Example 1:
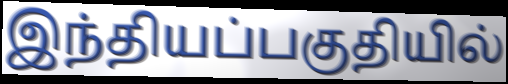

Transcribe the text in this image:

இந்தியப்பகுதியில்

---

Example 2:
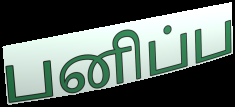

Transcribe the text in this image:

பனிப்ப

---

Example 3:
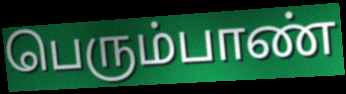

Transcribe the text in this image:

பெரும்பாண்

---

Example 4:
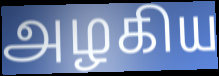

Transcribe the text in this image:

அழகிய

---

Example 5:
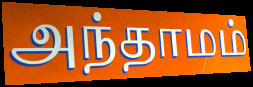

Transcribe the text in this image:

அந்தாமம்